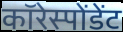
कॉरेस्पोंडेंट